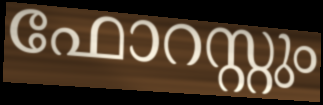
ഫോറസ്റ്റും